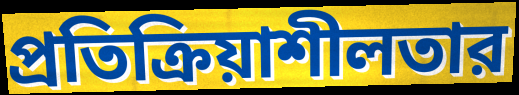
প্রতিক্রিয়াশীলতার